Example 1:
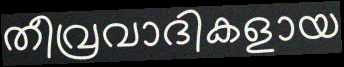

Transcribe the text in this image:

തീവ്രവാദികളായ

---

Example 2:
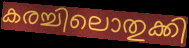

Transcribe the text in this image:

കരച്ചിലൊതുക്കി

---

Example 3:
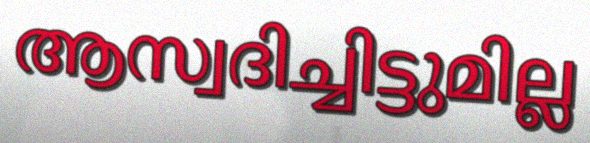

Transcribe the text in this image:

ആസ്വദിച്ചിട്ടുമില്ല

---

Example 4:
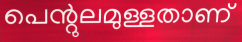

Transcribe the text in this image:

പെന്റുലമുള്ളതാണ്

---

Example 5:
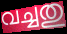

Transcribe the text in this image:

വച്ചതു